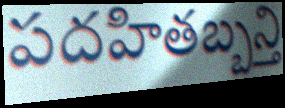
పదహితబ్బన్తి